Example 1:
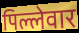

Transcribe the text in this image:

पिल्लेवार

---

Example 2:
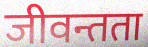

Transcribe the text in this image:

जीवन्तता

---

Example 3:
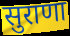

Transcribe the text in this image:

सुराणा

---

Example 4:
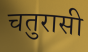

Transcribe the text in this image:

चतुरासी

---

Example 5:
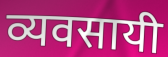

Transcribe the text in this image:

व्यवसायी